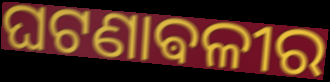
ଘଟଣାଵଳୀର